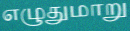
எழுதுமாறு